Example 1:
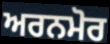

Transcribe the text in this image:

ਅਰਨਮੋਰ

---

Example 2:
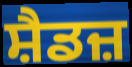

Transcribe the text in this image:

ਸ਼ੈਡਜ਼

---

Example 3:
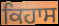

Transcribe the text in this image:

ਕਿਹਾਸ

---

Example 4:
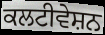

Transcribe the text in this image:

ਕਲਟੀਵੇਸ਼ਨ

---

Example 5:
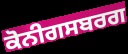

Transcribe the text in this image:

ਕੋਨੀਗਸਬਰਗ